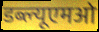
डब्ल्यूएमओ